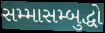
સમ્માસમ્બુદ્ધો